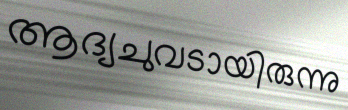
ആദ്യചുവടായിരുന്നു